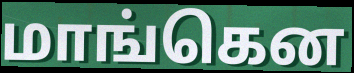
மாங்கென